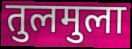
तुलमुला